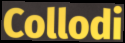
Collodi